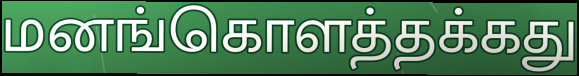
மனங்கொளத்தக்கது